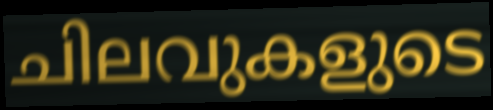
ചിലവുകളുടെ